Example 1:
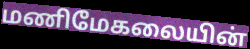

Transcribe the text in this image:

மணிமேகலையின்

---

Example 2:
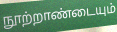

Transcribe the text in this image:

நூற்றாண்டையும்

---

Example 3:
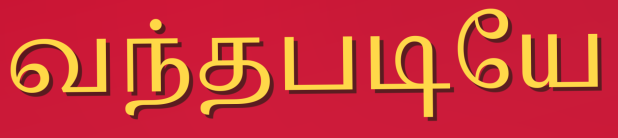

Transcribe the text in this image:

வந்தபடியே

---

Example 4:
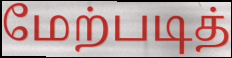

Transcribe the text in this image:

மேற்படித்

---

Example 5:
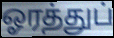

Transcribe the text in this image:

ஓரத்துப்